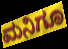
ಮನಿಗೂ